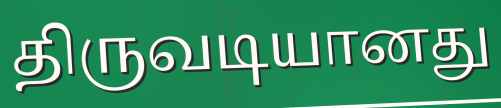
திருவடியானது